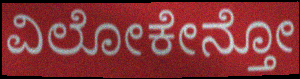
ವಿಲೋಕೇನ್ತೋ